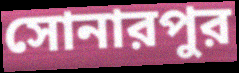
সোনারপুর